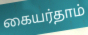
கையர்தாம்